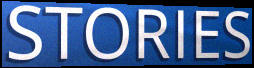
STORIES